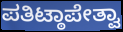
ಪತಿಟ್ಠಾಪೇತ್ವಾ